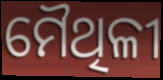
ମୈଥିଳୀ